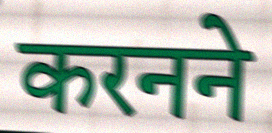
करनने